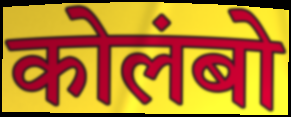
कोलंबो